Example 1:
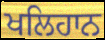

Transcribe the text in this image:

ਖਲਿਹਾਨ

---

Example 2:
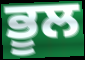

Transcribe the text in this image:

ਭੂਲ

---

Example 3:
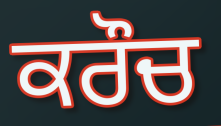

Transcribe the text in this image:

ਕਰੌਚ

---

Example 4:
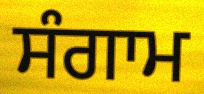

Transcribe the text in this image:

ਸੰਗਾਮ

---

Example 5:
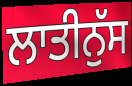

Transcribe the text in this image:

ਲਾਤੀਨੁੱਸ